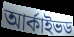
আর্কাইভড